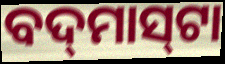
ବଦ୍‌ମାସ୍‌ଟା